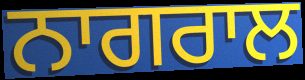
ਨਾਗਰਾਲ